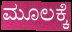
ಮೂಲಕ್ಕೆ